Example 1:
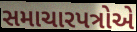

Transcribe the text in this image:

સમાચારપત્રોએ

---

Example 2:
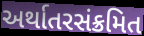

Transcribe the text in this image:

અર્થાતરસંક્રમિત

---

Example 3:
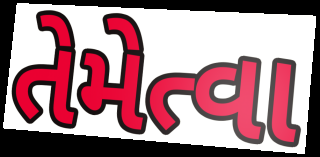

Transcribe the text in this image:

તેમેત્વા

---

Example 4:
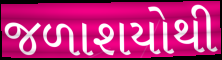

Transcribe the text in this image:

જળાશયોથી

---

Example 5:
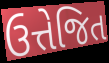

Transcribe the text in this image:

ઉત્તેજિત